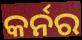
କର୍ନର